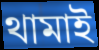
থামাই